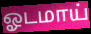
ஓடமாய்